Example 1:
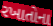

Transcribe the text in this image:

રખાતોના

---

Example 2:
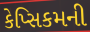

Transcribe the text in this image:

કેપ્સિકમની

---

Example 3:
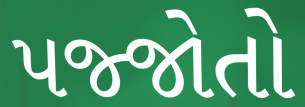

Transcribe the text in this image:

પજ્જોતો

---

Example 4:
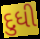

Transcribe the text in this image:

દુધી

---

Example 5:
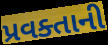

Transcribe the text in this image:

પ્રવક્તાની